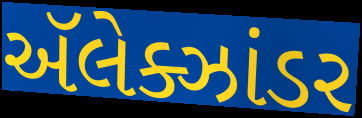
ઍલેક્ઝાંડર